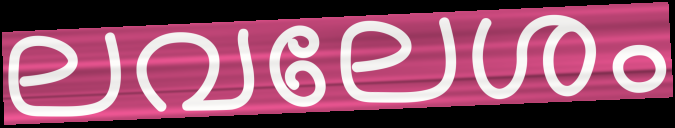
ലവലേശം